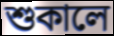
শুকালে